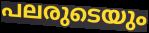
പലരുടെയും